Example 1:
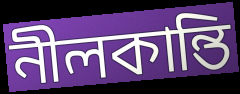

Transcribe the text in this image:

নীলকান্তি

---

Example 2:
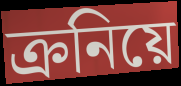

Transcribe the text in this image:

ক্রনিয়ে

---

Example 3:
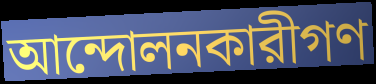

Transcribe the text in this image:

আন্দোলনকারীগণ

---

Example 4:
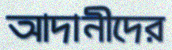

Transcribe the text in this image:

আদানীদের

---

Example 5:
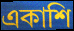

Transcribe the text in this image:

একাশি